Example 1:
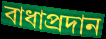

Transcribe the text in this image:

বাধাপ্রদান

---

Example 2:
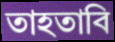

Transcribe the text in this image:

তাহতাবি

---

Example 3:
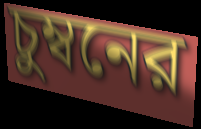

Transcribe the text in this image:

চুম্বনের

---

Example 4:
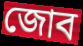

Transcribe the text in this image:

জোব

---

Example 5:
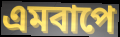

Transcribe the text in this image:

এমবাপে